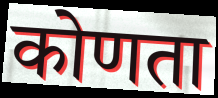
कोणता